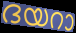
ദയറാ